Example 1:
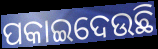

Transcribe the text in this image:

ପକାଇଦେଉଛି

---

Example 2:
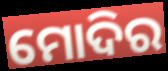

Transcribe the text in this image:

ମୋଦିର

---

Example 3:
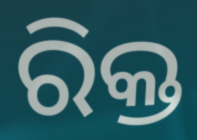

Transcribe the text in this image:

ରିକ୍ତ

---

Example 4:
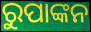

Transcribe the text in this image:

ରୁପାଙ୍କନ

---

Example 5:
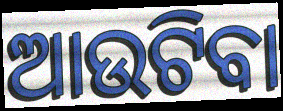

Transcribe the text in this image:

ଆଉଟିବା